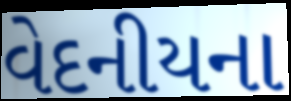
વેદનીયના